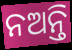
ନଅନ୍ତି